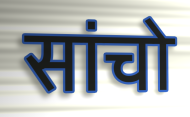
सांचो